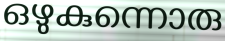
ഒഴുകുന്നൊരു